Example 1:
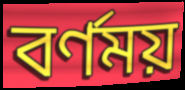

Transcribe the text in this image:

বর্ণময়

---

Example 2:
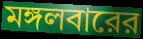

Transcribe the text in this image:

মঙ্গলবারের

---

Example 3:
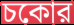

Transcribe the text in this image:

চকোর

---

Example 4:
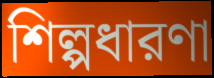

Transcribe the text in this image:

শিল্পধারণা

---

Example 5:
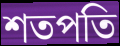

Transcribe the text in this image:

শতপতি